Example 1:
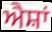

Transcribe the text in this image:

ਐਸ਼ਾਂ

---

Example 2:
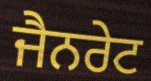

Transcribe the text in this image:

ਜੈਨਰੇਟ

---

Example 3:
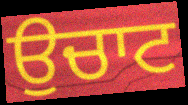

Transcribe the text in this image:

ਉਚਾਟ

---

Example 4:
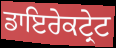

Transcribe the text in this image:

ਡਾਇਰੇਕਟ੍ਰੇਟ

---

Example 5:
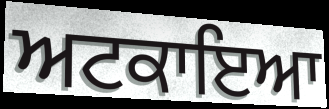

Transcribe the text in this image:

ਅਟਕਾਇਆ